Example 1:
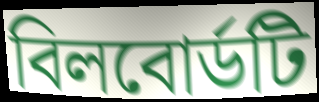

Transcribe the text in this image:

বিলবোর্ডটি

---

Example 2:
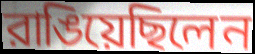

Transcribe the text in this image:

রাঙিয়েছিলেন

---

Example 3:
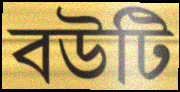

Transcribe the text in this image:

বউটি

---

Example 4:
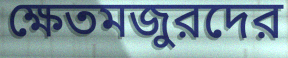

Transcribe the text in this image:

ক্ষেতমজুরদের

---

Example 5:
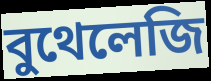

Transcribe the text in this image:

বুথেলেজি